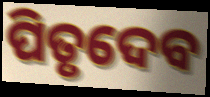
ପିତୃଦେବ